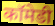
कॉमेडी